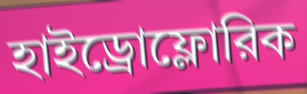
হাইড্রোফ্লোরিক